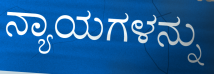
ನ್ಯಾಯಗಳನ್ನು